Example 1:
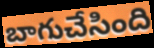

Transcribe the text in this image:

బాగుచేసింది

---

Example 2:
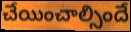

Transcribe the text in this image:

చేయించాల్సిందే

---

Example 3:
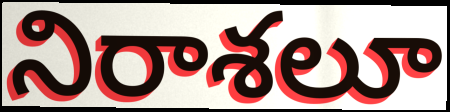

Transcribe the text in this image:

నిరాశలూ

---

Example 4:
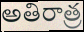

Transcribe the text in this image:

అతిరాత్ర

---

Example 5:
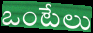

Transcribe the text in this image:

ఒంటేలు